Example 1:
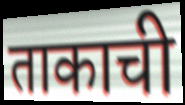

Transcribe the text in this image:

ताकाची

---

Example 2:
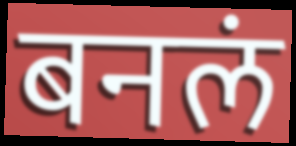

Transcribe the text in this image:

बनलं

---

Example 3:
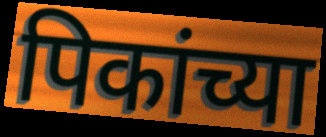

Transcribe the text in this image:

पिकांच्या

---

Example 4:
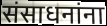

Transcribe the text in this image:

संसाधनांना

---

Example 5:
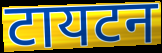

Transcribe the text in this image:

टायटन